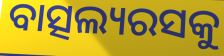
ବାତ୍ସଲ୍ୟରସକୁ